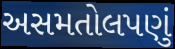
અસમતોલપણું